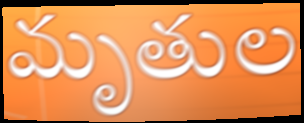
మృతుల